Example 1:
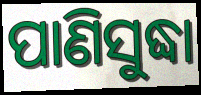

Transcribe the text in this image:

ପାଣିସୁଦ୍ଧା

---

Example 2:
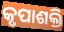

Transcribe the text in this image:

କୃପାଶକ୍ତି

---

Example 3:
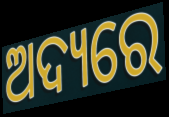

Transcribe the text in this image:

ଅଦ୍ୟରେ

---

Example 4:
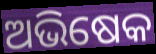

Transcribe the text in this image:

ଅଭିଷେକ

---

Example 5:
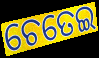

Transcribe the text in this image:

ଚେତେଇ